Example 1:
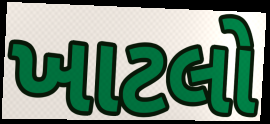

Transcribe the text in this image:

ખાટલો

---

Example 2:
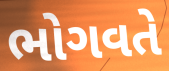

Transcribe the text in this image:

ભોગવતે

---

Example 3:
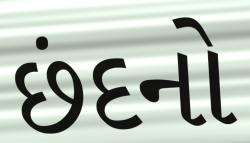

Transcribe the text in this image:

છંદનો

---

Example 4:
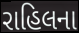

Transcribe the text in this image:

રાહિલના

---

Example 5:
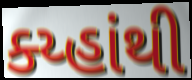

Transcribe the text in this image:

ક્ય્હાંથી